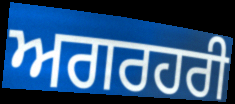
ਅਗਰਹਰੀ